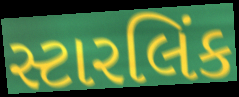
સ્ટારલિંક